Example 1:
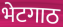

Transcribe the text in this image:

भेटगाठ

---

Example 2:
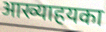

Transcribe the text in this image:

आख्याहयका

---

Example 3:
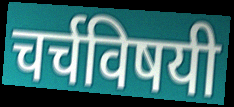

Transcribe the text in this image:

चर्चविषयी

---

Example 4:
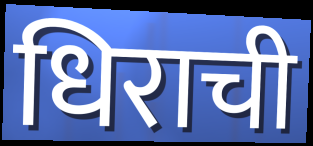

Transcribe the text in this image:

धिराची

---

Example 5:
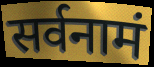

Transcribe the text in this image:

सर्वनामं